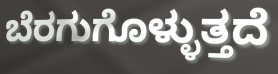
ಬೆರಗುಗೊಳ್ಳುತ್ತದೆ